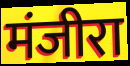
मंजीरा